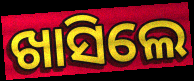
ଖାସିଲେ